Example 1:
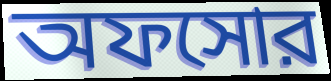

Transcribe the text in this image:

অফসোর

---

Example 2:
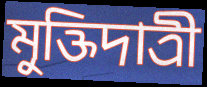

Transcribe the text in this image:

মুক্তিদাত্রী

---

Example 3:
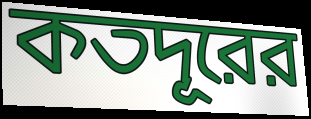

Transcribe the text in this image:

কতদূরের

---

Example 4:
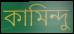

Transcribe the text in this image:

কামিন্দু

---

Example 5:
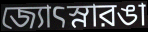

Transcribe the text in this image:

জ্যোৎস্নারঙা